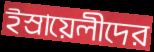
ইস্রায়েলীদের